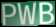
PWB